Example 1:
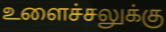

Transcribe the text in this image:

உளைச்சலுக்கு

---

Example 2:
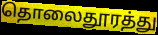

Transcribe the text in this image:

தொலைதூரத்து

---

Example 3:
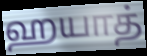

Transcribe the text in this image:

ஹயாத்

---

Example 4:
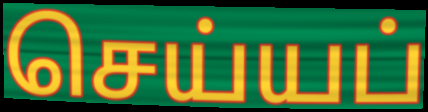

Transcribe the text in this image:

செய்யப்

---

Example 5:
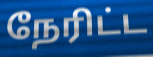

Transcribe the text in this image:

நேரிட்ட